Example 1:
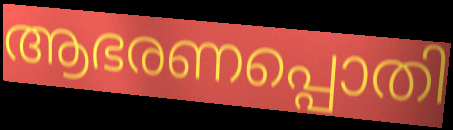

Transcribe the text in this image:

ആഭരണപ്പൊതി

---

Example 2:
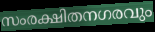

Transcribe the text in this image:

സംരക്ഷിതനഗരവും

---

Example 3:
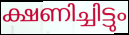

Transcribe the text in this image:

ക്ഷണിച്ചിട്ടും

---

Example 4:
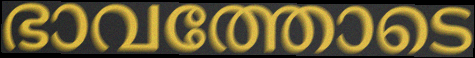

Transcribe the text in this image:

ഭാവത്തോടെ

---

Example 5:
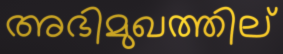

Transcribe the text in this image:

അഭിമുഖത്തില്